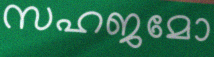
സഹജമോ